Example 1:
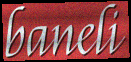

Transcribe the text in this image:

baneli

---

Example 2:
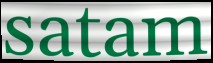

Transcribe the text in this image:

satam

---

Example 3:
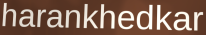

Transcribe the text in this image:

harankhedkar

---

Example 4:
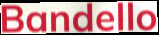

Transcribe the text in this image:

Bandello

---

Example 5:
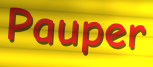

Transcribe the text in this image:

Pauper